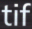
tif